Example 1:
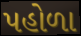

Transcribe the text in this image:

પહોળા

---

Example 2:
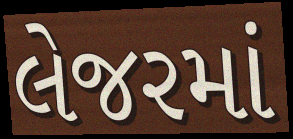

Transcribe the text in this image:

લેજરમાં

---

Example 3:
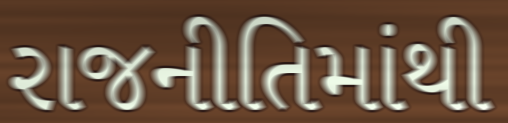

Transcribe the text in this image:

રાજનીતિમાંથી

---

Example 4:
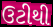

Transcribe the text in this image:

ઉટીથી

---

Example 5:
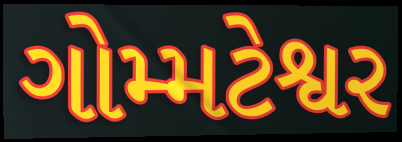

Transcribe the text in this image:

ગોમ્મટેશ્વર